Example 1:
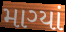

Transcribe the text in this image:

માગ્યાં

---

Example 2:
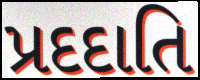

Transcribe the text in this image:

પ્રદદાતિ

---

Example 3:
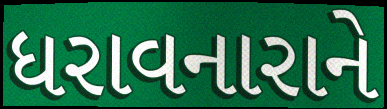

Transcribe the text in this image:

ધરાવનારાને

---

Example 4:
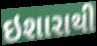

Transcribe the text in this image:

ઇશારાથી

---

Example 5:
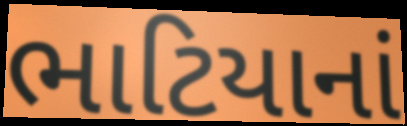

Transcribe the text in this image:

ભાટિયાનાં